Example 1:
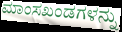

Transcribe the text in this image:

ಮಾಂಸಖಂಡಗಳನ್ನು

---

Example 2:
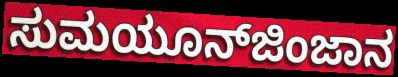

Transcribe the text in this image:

ಸುಮಯೂನ್‍ಜಿಂಜಾನ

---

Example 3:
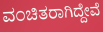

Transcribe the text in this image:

ವಂಚಿತರಾಗಿದ್ದೇವೆ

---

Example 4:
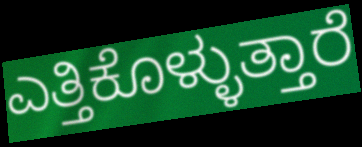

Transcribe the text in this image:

ಎತ್ತಿಕೊಳ್ಳುತ್ತಾರೆ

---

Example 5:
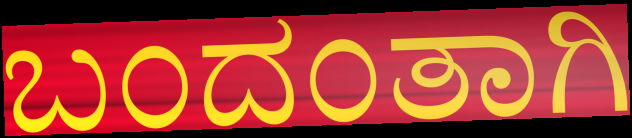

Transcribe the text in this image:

ಬಂದಂತಾಗಿ